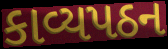
કાવ્યપઠન